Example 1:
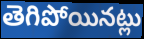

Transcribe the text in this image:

తెగిపోయినట్లు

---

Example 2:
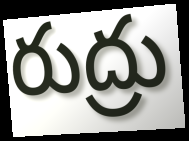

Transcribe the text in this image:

రుద్రు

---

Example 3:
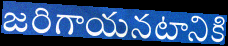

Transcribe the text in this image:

జరిగాయనటానికి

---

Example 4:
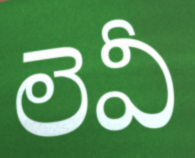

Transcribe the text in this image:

లెవీ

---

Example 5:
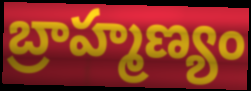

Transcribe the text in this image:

బ్రాహ్మణ్యం